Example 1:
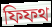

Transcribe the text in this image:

ফিফথ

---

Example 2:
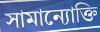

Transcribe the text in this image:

সামান্যোক্তি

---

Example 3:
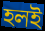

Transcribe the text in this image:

হলই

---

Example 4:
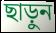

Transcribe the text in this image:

ছাড়ুন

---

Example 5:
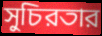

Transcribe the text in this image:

সুচিরতার